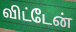
விட்டேன்